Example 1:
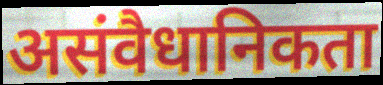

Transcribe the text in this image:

असंवैधानिकता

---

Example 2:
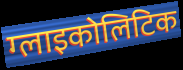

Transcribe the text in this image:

ग्लाइकोलिटिक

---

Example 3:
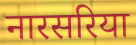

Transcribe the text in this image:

नारसरिया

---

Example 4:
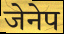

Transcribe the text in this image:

जेनेप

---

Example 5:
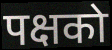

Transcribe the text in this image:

पक्षको